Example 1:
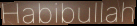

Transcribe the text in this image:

Habibullah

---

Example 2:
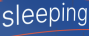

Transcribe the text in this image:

sleeping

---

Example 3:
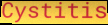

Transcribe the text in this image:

Cystitis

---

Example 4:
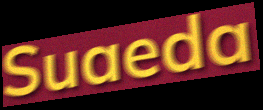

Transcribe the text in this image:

Suaeda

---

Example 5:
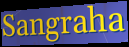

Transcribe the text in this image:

Sangraha